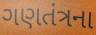
ગણતંત્રના